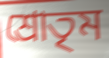
শ্রোতৃম